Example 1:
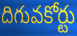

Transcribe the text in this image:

దిగువకోర్టు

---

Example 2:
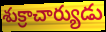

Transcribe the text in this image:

శుక్రాచార్యుడు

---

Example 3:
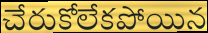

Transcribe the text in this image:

చేరుకోలేకపోయిన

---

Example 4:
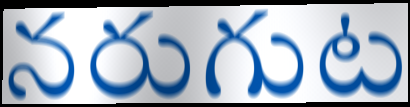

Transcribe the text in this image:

నరుగుట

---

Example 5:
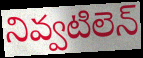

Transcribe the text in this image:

నివ్వటిలెన్